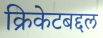
क्रिकेटबद्दल